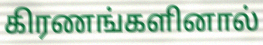
கிரணங்களினால்